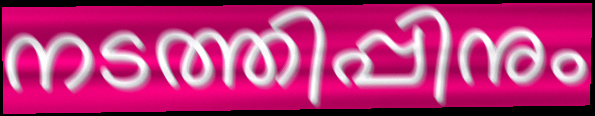
നടത്തിപ്പിനും